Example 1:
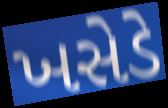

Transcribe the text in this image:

ખસેડે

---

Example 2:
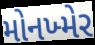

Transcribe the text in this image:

મોનખ્મેર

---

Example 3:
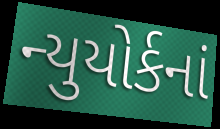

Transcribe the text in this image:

ન્યુયોર્કનાં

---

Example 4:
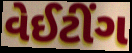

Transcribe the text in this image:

વેઈટીંગ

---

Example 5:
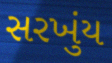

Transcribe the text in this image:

સરખુંય